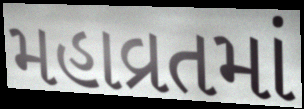
મહાવ્રતમાં